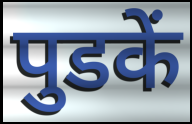
पुडकें